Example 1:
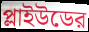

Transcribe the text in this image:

প্লাইউডের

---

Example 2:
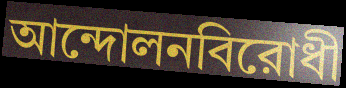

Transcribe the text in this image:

আন্দোলনবিরোধী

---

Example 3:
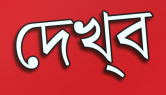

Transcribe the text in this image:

দেখ্‌ব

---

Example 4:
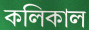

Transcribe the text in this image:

কলিকাল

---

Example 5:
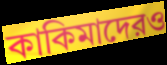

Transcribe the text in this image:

কাকিমাদেরও